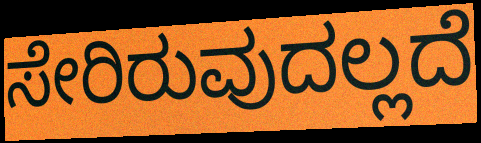
ಸೇರಿರುವುದಲ್ಲದೆ